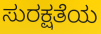
ಸುರಕ್ಷತೆಯ